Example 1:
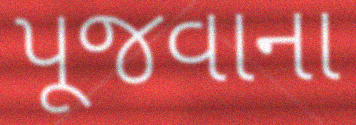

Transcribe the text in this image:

પૂજવાના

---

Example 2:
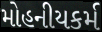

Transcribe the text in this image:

મોહનીયકર્મ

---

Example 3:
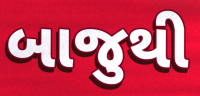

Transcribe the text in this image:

બાજુથી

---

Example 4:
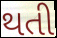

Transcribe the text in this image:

થતી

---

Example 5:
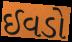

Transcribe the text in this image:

ઈવડો